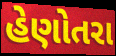
હેણોતરા